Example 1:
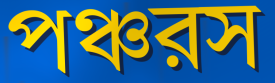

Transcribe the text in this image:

পঞ্চরস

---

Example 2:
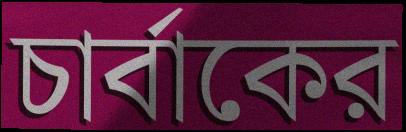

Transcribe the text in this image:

চার্বাকের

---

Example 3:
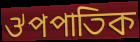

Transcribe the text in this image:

ঔপপাতিক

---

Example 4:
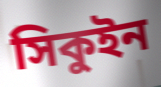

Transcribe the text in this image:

সিকুইন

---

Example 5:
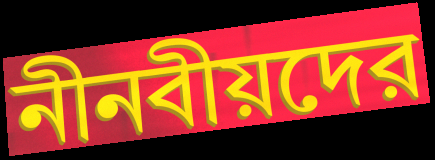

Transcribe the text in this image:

নীনবীয়দের